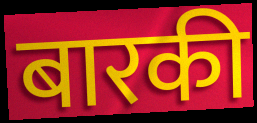
बारकी